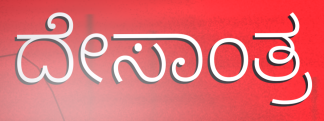
ದೇಸಾಂತ್ರ